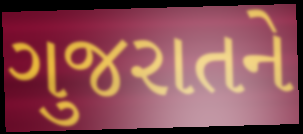
ગુજરાતને